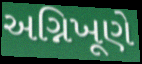
અગ્નિખૂણે